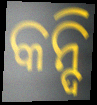
କନ୍ଦି